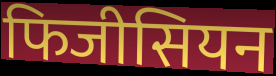
फिजीसियन